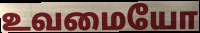
உவமையோ